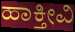
ಹಾಕ್ತೀವಿ